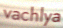
vachlya